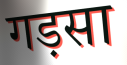
गड़सा